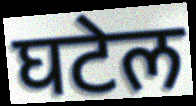
घटेल